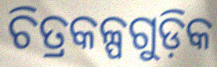
ଚିତ୍ରକଳ୍ପଗୁଡ଼ିକ